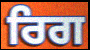
ਰਿਗ